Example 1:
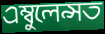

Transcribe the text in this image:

এম্বুলেন্সত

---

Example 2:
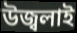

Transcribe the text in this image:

উজ্বলাই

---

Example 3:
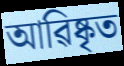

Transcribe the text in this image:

আৱিষ্কৃত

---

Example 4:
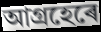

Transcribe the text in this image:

আগ্ৰহেৰে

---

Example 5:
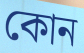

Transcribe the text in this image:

কোন